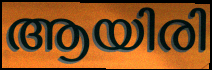
ആയിരി